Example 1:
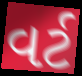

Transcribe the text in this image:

વર્ટ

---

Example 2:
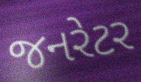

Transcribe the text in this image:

જનરેટર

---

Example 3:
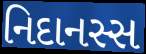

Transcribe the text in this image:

નિદાનસ્સ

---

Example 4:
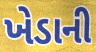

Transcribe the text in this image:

ખેડાની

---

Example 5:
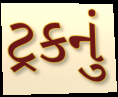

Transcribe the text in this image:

ટ્રકનું